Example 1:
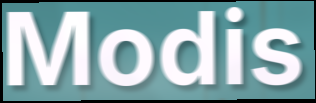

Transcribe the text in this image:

Modis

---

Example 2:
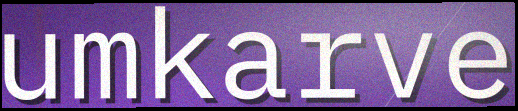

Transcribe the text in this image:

umkarve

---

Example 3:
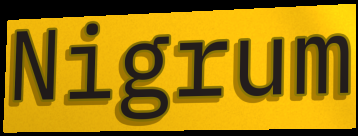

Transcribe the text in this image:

Nigrum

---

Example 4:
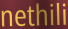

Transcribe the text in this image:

nethili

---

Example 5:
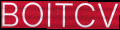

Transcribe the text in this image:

BOITCV